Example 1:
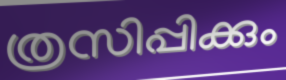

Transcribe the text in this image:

ത്രസിപ്പിക്കും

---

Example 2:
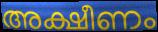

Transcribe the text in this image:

അക്ഷീണം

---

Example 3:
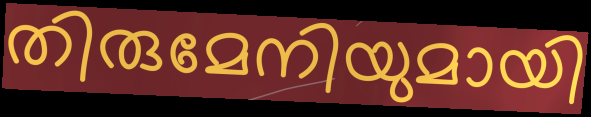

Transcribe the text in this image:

തിരുമേനിയുമായി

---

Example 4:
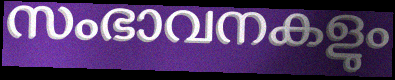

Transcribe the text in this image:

സംഭാവനകളും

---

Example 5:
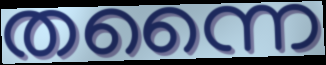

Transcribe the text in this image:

തന്നൈ